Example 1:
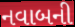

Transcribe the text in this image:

નવાબની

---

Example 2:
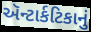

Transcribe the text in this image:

ઍન્ટાર્કટિકાનું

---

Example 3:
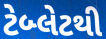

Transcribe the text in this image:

ટેબ્લેટથી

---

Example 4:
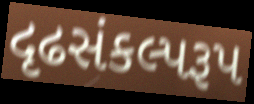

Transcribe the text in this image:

દૃઢસંકલ્પરૂપ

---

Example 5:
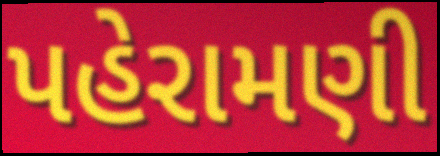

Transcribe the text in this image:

પહેરામણી